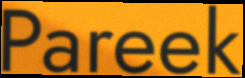
Pareek